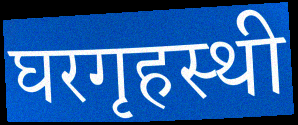
घरगृहस्थी